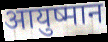
आयुष्मान